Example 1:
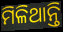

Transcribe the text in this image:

ମିଳିଥାନ୍ତି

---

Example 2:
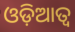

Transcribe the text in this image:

ଓଡ଼ିଆତ୍ୱ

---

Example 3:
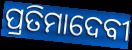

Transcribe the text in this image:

ପ୍ରତିମାଦେବୀ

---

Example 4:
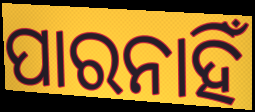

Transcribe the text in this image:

ପାରନାହିଁ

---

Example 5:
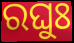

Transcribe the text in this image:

ରଘୁଃ